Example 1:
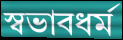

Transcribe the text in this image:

স্বভাবধর্ম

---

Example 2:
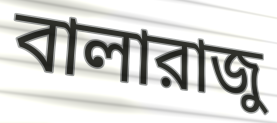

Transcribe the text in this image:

বালারাজু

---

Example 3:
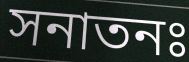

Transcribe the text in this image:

সনাতনঃ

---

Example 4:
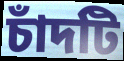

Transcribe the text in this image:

চাঁদটি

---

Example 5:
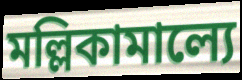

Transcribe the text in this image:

মল্লিকামাল্যে